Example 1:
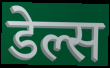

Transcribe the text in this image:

डेल्स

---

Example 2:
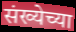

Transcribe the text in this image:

संख्येच्या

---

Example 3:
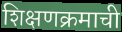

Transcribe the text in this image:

शिक्षणक्रमाची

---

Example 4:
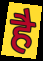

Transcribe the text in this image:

है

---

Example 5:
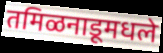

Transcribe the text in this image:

तमिळनाडूमधले